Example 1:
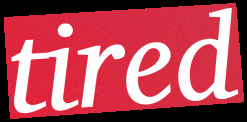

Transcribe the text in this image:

tired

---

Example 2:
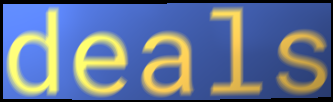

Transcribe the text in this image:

deals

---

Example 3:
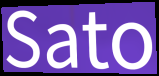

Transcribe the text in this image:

Sato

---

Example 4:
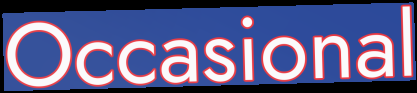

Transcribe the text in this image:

Occasional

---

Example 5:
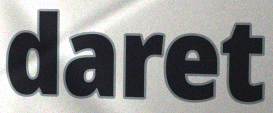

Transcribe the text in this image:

daret